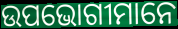
ଉପଭୋଗୀମାନେ